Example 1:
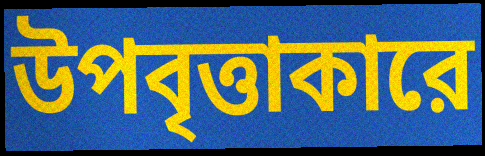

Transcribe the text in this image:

উপবৃত্তাকারে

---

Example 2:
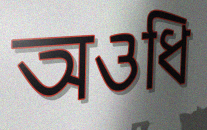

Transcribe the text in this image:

অওধি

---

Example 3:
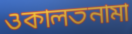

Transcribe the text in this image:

ওকালতনামা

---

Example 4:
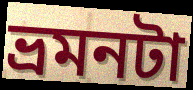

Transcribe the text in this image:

ভ্রমনটা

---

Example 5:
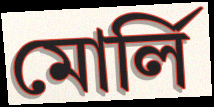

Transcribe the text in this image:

মোর্লি